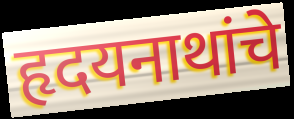
हृदयनाथांचे